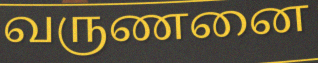
வருணனை